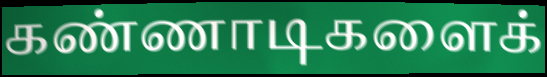
கண்ணாடிகளைக்